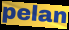
pelan